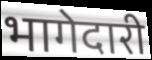
भागेदारी